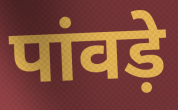
पांवड़े